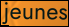
jeunes